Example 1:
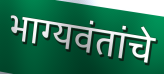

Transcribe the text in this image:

भाग्यवंतांचे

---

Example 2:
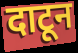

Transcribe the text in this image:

दाटून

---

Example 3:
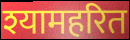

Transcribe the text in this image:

श्यामहरित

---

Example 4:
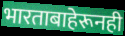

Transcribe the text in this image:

भारताबाहेरूनही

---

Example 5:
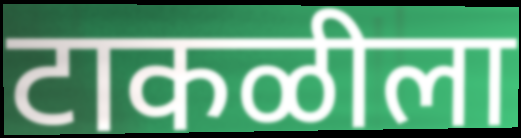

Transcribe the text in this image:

टाकळीला